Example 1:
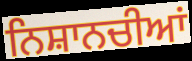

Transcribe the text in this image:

ਨਿਸ਼ਾਨਚੀਆਂ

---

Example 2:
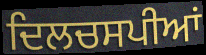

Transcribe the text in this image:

ਦਿਲਚਸਪੀਆਂ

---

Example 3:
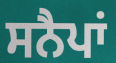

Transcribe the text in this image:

ਸਨੈਪਾਂ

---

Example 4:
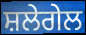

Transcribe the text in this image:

ਸ਼ਲੇਗੇਲ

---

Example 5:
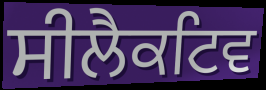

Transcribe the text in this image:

ਸੀਲੈਕਟਿਵ